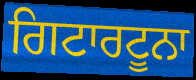
ਗਿਟਾਰਟੂਨਾ